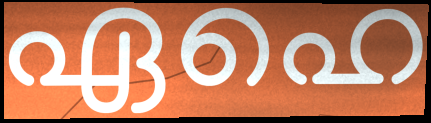
ഏഹെ